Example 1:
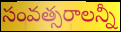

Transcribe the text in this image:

సంవత్సరాలన్నీ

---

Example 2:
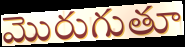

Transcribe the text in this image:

మొరుగుతూ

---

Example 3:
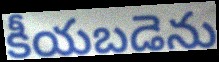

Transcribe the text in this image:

కీయబడెను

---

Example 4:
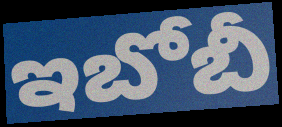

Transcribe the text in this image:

ఇబోబీ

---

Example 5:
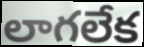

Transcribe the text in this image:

లాగలేక